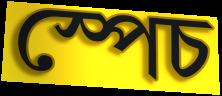
স্পেচ